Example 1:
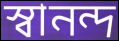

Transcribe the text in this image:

স্বানন্দ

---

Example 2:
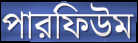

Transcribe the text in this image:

পারফিউম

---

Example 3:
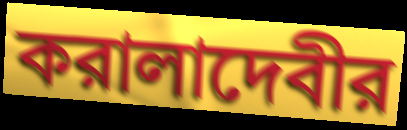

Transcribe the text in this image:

করালাদেবীর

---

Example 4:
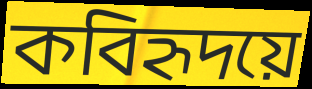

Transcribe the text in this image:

কবিহৃদয়ে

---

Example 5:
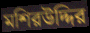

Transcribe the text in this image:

মশিরউদ্দির